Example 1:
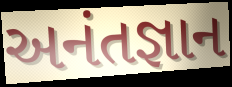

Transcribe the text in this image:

અનંતજ્ઞાન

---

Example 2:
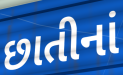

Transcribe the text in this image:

છાતીનાં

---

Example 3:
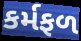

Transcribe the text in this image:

કર્મફળ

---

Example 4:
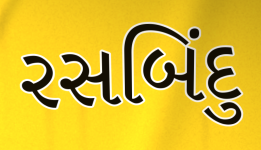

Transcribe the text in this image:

રસબિંદુ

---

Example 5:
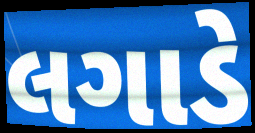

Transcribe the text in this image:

લગાડે